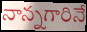
నాన్నగారినే